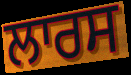
ਲਾਰਸ